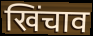
खिंचाव